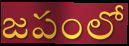
జపంలో